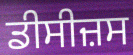
ਡੀਸੀਜ਼ਸ